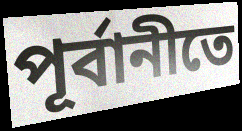
পূর্বানীতে